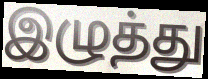
இழுத்து